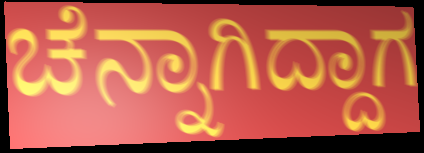
ಚೆನ್ನಾಗಿದ್ದಾಗ